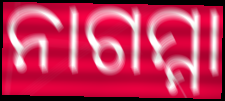
ନାଗମ୍ମା